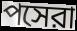
পসেরা